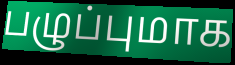
பழுப்புமாக